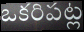
ఒకరిపట్ల